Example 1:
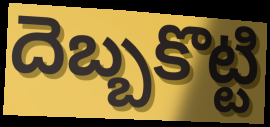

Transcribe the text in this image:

దెబ్బకొట్టి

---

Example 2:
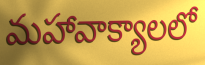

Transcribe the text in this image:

మహావాక్యాలలో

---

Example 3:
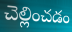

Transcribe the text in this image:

చెల్లించడం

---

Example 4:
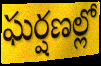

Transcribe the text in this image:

ఘర్షణల్లో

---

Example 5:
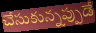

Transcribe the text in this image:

చేసుకున్నప్పుడే